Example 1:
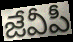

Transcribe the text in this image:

జేవీపీ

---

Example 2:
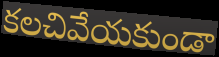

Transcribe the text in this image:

కలచివేయకుండా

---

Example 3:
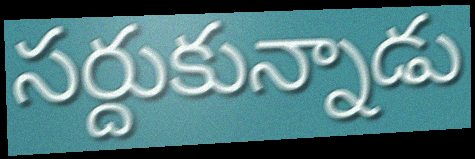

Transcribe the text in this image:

సర్దుకున్నాడు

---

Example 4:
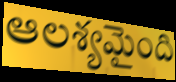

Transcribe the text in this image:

ఆలశ్యమైంది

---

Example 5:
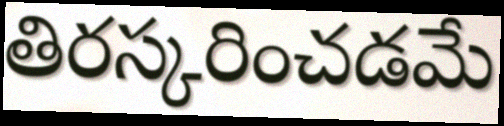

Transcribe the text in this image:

తిరస్కరించడమే